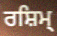
ਰਸ਼ਿਮ੍